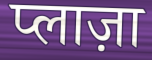
प्लाज़ा